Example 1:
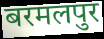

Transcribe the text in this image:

बरमलपुर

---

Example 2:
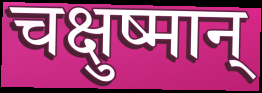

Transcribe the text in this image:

चक्षुष्मान्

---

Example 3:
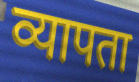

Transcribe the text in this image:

व्यापता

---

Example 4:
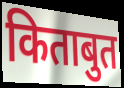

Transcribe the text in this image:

किताबुत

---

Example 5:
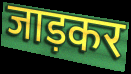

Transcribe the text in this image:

जाड़कर